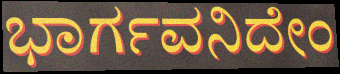
ಭಾರ್ಗವನಿದೇಂ